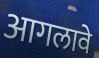
आगलावे